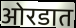
ओरडात